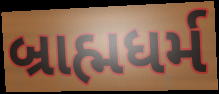
બ્રાહ્મધર્મ